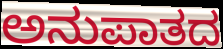
ಅನುಪಾತದ